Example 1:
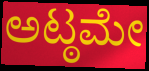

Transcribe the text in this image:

ಅಟ್ಠಮೇ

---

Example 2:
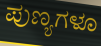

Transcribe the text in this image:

ಪುಣ್ಯಗಳೂ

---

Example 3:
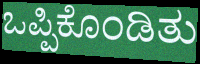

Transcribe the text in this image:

ಒಪ್ಪಿಕೊಂಡಿತು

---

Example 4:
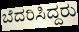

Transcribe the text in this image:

ಬೆದರಿಸಿದ್ದರು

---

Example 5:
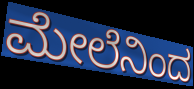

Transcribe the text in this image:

ಮೇಲೆನಿಂದ